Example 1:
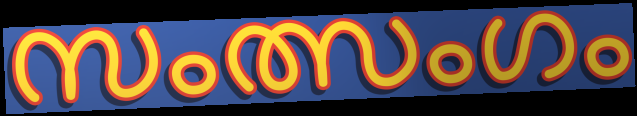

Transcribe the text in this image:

സംത്സംഗം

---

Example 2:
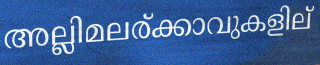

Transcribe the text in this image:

അല്ലിമലര്ക്കാവുകളില്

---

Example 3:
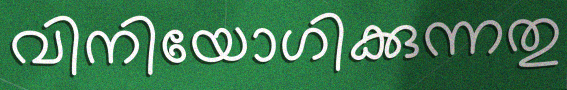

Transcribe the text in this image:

വിനിയോഗിക്കുന്നതു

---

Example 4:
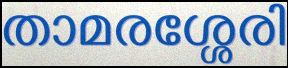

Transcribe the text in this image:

താമരശ്ശേരി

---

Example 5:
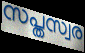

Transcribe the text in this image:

സപ്തസ്വര